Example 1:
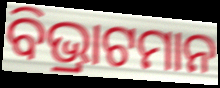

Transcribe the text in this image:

ବିଭ୍ରାଟମାନ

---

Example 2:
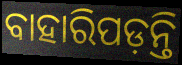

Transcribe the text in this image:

ବାହାରିପଡ଼ନ୍ତି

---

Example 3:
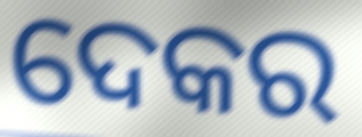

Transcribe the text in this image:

ଦେକର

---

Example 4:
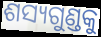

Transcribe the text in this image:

ଶସ୍ୟଗୁଣ୍ଡକୁ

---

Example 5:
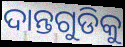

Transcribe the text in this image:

ଦାନ୍ତଗୁଡିକୁ